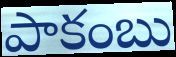
పాకంబు